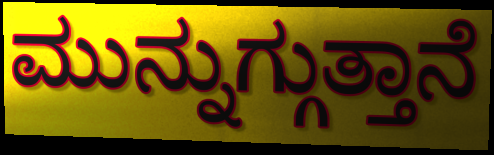
ಮುನ್ನುಗ್ಗುತ್ತಾನೆ